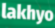
lakhyo